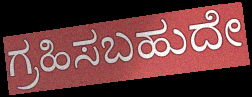
ಗ್ರಹಿಸಬಹುದೇ